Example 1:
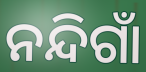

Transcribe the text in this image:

ନନ୍ଦିଗାଁ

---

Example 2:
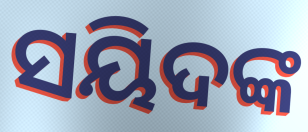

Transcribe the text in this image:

ସୟିଦଙ୍କ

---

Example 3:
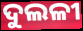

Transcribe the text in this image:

ଦୁଲଳୀ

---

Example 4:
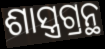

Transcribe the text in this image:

ଶାସ୍ତ୍ରଗ୍ରନ୍ଥ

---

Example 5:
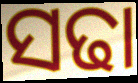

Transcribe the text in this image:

ସଢା